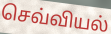
செவ்வியல்